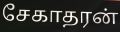
சேகாதரன்